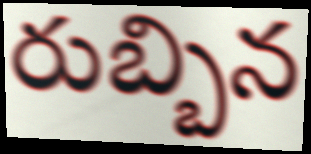
రుబ్బిన